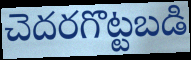
చెదరగొట్టబడి